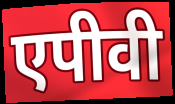
एपीवी